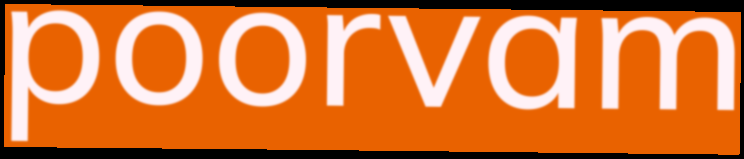
poorvam